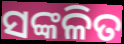
ସଙ୍କଳିତ